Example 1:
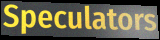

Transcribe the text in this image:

Speculators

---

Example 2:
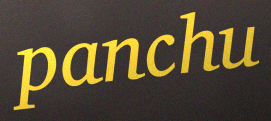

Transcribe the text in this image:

panchu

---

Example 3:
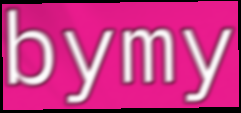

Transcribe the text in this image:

bymy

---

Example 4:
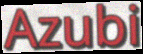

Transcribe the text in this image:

Azubi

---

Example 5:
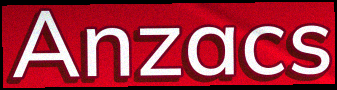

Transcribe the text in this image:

Anzacs